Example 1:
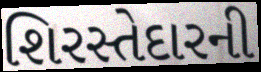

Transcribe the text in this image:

શિરસ્તેદારની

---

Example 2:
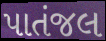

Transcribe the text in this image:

પાતંજલ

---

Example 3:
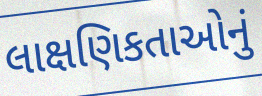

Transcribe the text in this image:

લાક્ષણિકતાઓનું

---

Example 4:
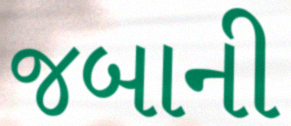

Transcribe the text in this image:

જબાની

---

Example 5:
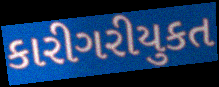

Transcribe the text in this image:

કારીગરીયુકત